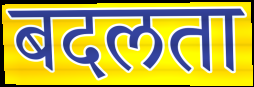
बदलता